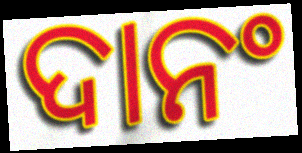
ଦାନଂ